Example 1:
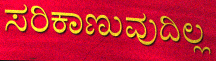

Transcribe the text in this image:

ಸರಿಕಾಣುವುದಿಲ್ಲ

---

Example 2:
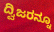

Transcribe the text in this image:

ದ್ವಿಜರನ್ನೂ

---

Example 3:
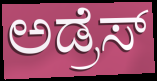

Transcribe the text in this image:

ಅಡ್ರೆಸ್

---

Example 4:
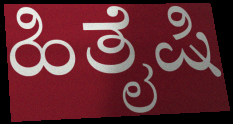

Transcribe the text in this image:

ಹಿತೈಷಿ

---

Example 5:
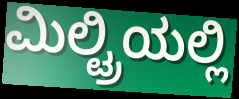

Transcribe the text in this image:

ಮಿಲ್ಟ್ರಿಯಲ್ಲಿ